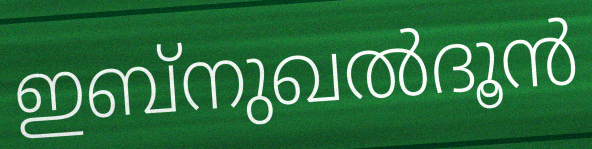
ഇബ്നുഖൽദൂൻ